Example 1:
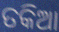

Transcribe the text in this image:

ତକିଆ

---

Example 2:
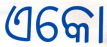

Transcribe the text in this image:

ଏକୋ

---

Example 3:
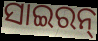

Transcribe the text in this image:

ସାଇରନ୍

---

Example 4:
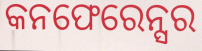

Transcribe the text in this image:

କନଫେରେନ୍ସର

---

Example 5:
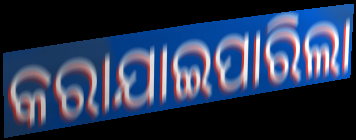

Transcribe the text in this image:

କରାଯାଇପାରିଲା